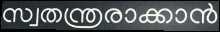
സ്വതന്ത്രരാക്കാൻ